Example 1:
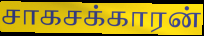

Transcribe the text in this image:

சாகசக்காரன்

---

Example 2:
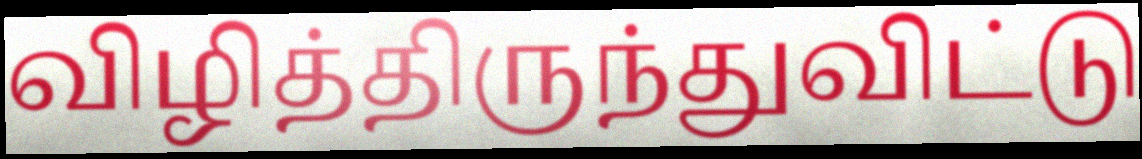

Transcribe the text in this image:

விழித்திருந்துவிட்டு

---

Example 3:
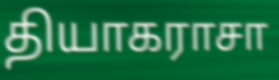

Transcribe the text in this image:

தியாகராசா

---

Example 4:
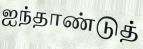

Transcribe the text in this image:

ஐந்தாண்டுத்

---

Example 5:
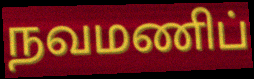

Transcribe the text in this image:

நவமணிப்